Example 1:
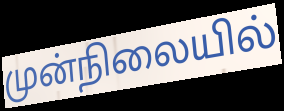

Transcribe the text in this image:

முன்நிலையில்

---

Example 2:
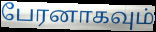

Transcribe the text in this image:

பேரனாகவும்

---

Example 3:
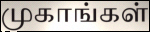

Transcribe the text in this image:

முகாங்கள்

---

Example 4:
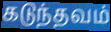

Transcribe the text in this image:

கடுந்தவம்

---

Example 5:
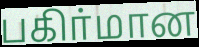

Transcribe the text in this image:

பகிர்மான